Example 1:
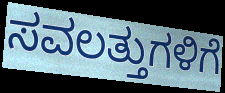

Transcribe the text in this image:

ಸವಲತ್ತುಗಳಿಗೆ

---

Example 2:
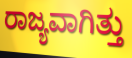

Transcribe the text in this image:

ರಾಜ್ಯವಾಗಿತ್ತು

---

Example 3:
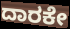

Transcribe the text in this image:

ದಾರಕೇ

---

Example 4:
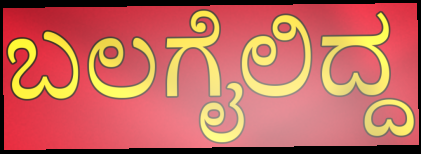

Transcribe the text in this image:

ಬಲಗೈಲಿದ್ದ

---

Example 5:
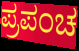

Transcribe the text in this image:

ಪ್ರಪಂಚ